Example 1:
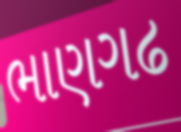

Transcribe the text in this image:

ભાણગઢ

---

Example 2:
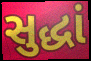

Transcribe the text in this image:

સુદ્ધાં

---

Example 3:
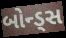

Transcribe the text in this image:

બોન્ડ્સ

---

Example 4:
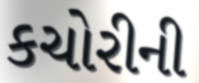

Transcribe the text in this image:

કચોરીની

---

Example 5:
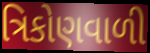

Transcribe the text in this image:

ત્રિકોણવાળી